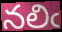
నలిఁ